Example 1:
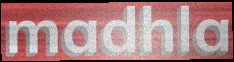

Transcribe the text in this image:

madhla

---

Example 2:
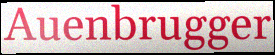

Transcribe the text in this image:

Auenbrugger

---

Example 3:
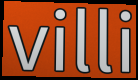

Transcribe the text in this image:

villi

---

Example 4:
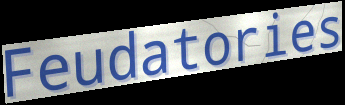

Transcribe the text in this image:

Feudatories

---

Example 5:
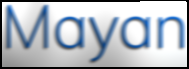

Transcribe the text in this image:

Mayan